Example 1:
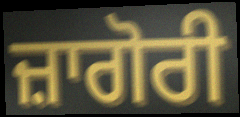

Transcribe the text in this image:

ਜ਼ਾਗੋਰੀ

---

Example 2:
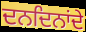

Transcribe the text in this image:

ਦਨਦਿਨਾਂਦੇ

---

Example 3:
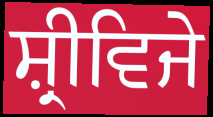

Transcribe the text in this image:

ਸ਼੍ਰੀਵਿਜੇ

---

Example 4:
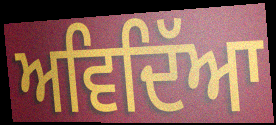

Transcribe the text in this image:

ਅਵਿਦਿੱਆ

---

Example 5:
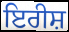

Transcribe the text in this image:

ਇਰੀਸ਼